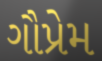
ગૌપ્રેમ